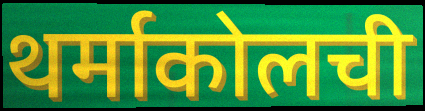
थर्माकोलची